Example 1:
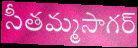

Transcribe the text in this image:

సీతమ్మసాగర్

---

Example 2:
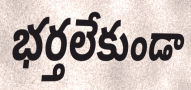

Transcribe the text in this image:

భర్తలేకుండా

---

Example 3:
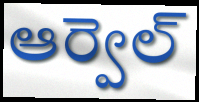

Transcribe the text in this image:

ఆర్వెల్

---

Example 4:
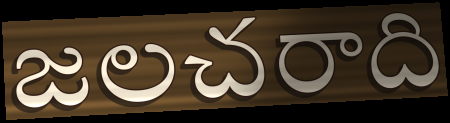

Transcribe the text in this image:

జలచరాది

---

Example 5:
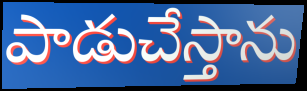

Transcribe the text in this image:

పాడుచేస్తాను